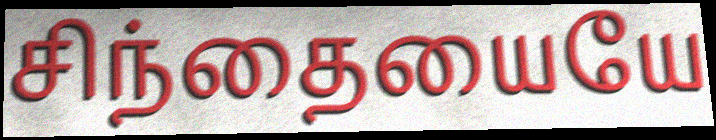
சிந்தையையே